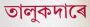
তালুকদাৰে